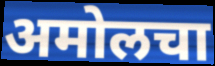
अमोलचा